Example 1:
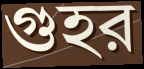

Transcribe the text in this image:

গুহর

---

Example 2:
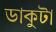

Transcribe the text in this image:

ডাকুটা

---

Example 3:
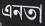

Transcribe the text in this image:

এনতা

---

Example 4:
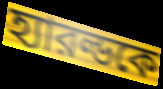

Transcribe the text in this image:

হ্যারল্ডকে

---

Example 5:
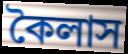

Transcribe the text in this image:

কৈলাস